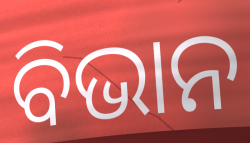
ବିଭାନ